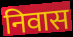
निवास